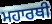
ਮਹਾਰਥੀ